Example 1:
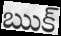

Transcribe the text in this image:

ఋక్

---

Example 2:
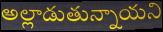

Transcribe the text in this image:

అల్లాడుతున్నాయని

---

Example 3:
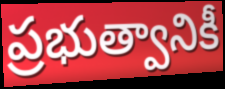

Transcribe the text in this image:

ప్రభుత్వానికీ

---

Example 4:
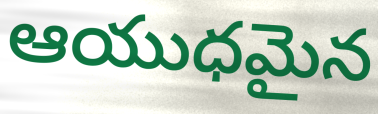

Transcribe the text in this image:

ఆయుధమైన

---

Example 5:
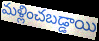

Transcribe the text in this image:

మళ్లించబడ్డాయి